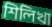
শিলিখা